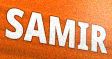
SAMIR